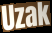
Uzak